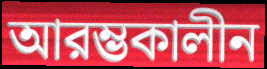
আরম্ভকালীন